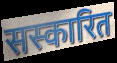
सस्कारित